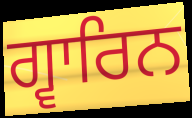
ਗ੍ਵਾਰਿਨ